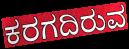
ಕರಗದಿರುವ